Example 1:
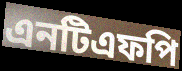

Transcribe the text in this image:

এনটিএফপি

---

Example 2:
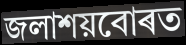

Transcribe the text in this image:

জলাশয়বোৰত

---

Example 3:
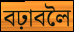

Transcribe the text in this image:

বঢ়াবলৈ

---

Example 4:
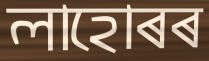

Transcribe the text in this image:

লাহোৰৰ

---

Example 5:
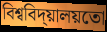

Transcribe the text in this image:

বিশ্ববিদ্য়ালয়তো